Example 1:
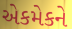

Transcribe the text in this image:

એકમેકને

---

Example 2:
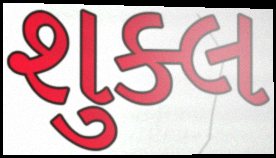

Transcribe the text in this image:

શુક્લ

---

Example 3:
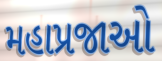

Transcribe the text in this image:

મહાપ્રજાઓ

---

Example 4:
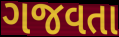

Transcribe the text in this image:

ગજવતા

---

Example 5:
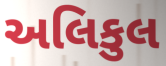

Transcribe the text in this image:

અલિકુલ